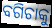
ବଗିଚାକୁ